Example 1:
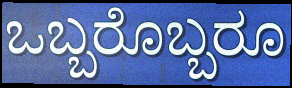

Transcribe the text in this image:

ಒಬ್ಬರೊಬ್ಬರೂ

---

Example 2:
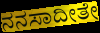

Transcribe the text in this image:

ನನಸಾದೀತೇ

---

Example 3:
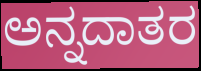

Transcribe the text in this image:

ಅನ್ನದಾತರ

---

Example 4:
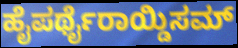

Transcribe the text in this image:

ಹೈಪರ್ಥೈರಾಯ್ಡಿಸಮ್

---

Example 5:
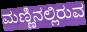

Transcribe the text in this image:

ಮಣ್ಣಿನಲ್ಲಿರುವ